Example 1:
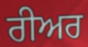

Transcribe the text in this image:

ਰੀਅਰ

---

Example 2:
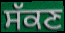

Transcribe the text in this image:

ਸੱਕਣ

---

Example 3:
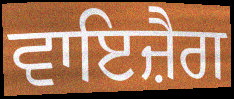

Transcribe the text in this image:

ਵਾਇਜ਼ੈਗ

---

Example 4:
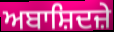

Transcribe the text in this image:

ਅਬਾਸ਼ਿਦਜ਼ੇ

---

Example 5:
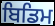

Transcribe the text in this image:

ਬਿਡਿਮ